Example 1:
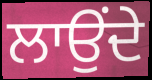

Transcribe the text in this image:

ਲਾਉਂਦੇ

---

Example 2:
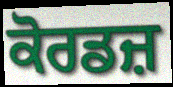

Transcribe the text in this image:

ਕੋਰਡਜ਼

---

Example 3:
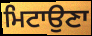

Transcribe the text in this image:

ਮਿਟਾਉਣਾ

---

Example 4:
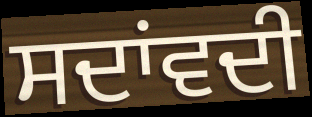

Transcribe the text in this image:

ਸਦਾਂਵਦੀ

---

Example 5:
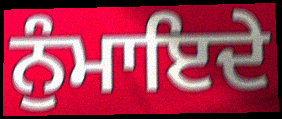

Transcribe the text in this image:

ਨੁੰਮਾਇਦੇ